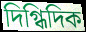
দিগ্ধিদিক